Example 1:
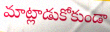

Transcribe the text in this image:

మాట్లాడుకోకుండా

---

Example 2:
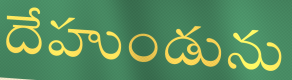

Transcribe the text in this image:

దేహుండును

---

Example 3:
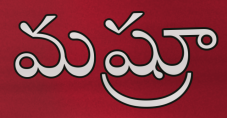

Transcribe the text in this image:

మష్రూ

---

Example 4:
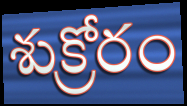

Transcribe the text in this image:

శుక్రోరం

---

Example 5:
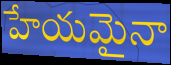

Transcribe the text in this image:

హేయమైనా